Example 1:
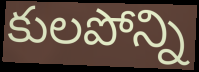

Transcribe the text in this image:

కులపోన్ని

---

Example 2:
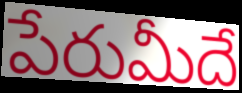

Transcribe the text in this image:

పేరుమీదే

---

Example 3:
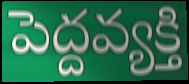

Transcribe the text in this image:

పెద్దవ్యక్తి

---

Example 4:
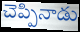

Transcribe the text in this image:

చెప్పినాడు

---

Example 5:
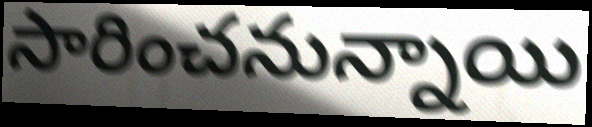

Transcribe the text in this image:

సారించనున్నాయి